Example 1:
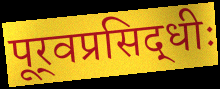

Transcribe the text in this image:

पूर्वप्रसिद्धीः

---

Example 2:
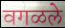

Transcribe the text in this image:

वगळले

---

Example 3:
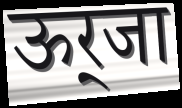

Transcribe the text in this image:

ऊर्जा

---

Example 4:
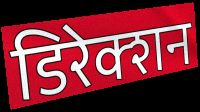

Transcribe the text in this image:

डिरेक्शन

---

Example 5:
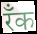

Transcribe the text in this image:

रँक